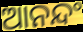
ଆନନ୍ଦଂ